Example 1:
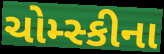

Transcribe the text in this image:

ચોમ્સ્કીના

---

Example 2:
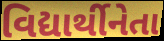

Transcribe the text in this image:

વિદ્યાર્થીનેતા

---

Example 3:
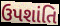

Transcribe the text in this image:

ઉપશાંતિ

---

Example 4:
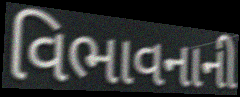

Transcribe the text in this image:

વિભાવનાની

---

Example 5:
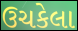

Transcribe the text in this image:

ઉચકેલા